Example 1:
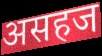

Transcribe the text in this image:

असहज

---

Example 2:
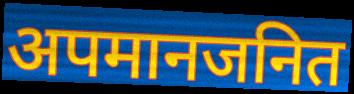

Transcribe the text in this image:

अपमानजनित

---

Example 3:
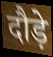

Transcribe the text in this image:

दौड़े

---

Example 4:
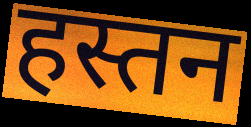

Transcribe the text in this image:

हस्तन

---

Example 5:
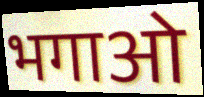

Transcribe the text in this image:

भगाओ